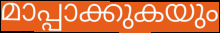
മാപ്പാക്കുകയും